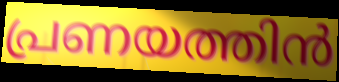
പ്രണയത്തിൻ